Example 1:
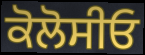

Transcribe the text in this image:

ਕੋਲੋਸੀਓ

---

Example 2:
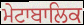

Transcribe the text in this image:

ਮੇਟਾਬਾਲਿਕ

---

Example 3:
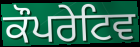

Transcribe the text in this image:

ਕੌਪਰੇਟਿਵ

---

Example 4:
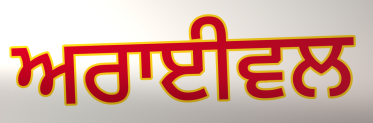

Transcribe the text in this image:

ਅਰਾਈਵਲ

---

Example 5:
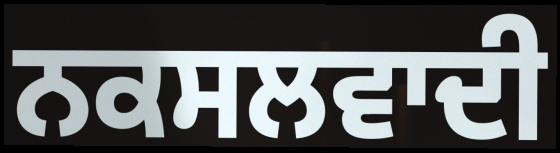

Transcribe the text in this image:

ਨਕਸਲਵਾਦੀ